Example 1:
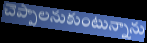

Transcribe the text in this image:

చెప్పాలనుకుంటున్నాను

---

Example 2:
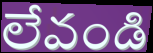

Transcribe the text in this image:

లేవండి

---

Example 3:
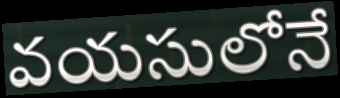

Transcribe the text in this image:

వయసులోనే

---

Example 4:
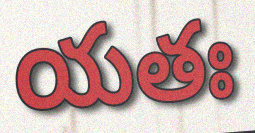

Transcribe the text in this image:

యతః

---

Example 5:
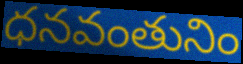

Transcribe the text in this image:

ధనవంతునిం